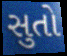
સુતો